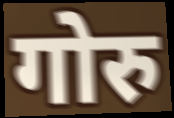
गोरु